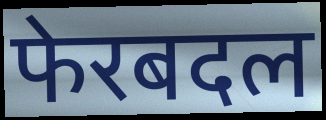
फेरबदल